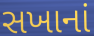
સખાનાં